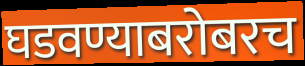
घडवण्याबरोबरच